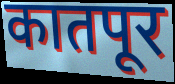
कातपूर